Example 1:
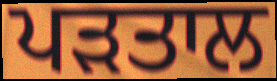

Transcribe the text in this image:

ਪੜਤਾਲ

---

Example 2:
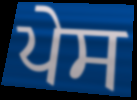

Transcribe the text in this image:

ਪੇਸ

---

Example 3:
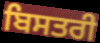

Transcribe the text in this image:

ਬਿਸਤਰੀ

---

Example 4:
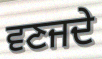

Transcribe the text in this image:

ਵਣਜਦੇ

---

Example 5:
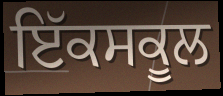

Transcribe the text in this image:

ਇੱਕਸਕੂਲ